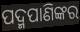
ପଦ୍ମପାଣିଙ୍କର